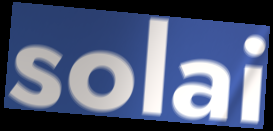
solai